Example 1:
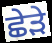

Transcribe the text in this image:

ਛੇੜੇ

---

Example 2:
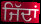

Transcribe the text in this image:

ਜਿੱਦਾਂ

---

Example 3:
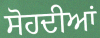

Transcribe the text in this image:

ਸੋਹਦੀਆਂ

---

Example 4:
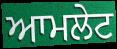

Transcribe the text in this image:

ਆਮਲੇਟ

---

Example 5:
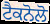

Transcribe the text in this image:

ਟੈਕਨੋਲੋ